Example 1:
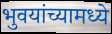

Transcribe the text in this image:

भुवयांच्यामध्ये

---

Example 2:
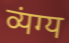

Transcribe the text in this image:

व्यंग्य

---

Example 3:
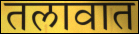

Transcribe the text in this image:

तलावात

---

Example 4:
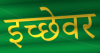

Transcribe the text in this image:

इच्छेवर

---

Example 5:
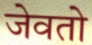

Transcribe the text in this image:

जेवतो